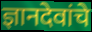
ज्ञानदेवांचे